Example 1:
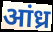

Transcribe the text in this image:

आंध्र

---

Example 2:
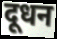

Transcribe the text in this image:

दूधन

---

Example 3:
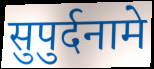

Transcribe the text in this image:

सुपुर्दनामे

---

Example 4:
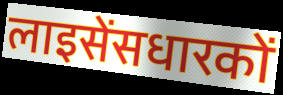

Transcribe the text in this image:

लाइसेंसधारकों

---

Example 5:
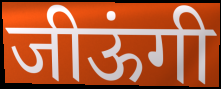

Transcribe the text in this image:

जीऊंगी